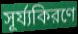
সূর্য্যকিরণে